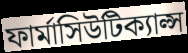
ফার্মাসিউটিক্যাল্স